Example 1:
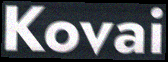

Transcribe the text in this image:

Kovai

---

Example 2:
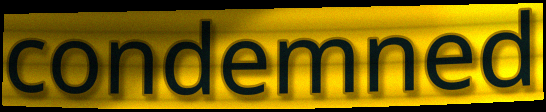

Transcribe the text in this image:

condemned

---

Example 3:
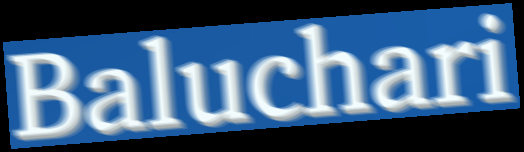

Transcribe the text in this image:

Baluchari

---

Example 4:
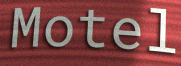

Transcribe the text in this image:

Motel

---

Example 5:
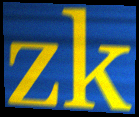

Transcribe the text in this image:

zk